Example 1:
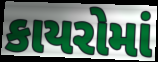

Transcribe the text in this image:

કાયરોમાં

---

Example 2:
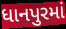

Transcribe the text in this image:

ધાનપુરમાં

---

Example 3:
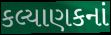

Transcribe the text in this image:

કલ્યાણકનાં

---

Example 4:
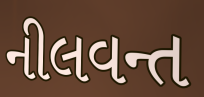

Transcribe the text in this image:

નીલવન્ત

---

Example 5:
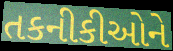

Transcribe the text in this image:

તકનીકીઓને